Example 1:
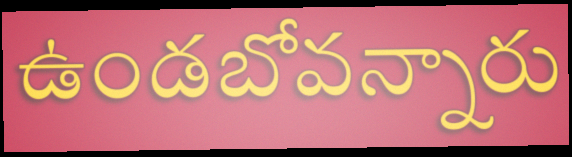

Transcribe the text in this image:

ఉండబోవన్నారు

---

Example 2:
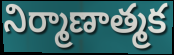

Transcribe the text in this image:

నిర్మాణాత్మక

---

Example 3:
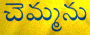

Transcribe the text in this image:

చెమ్మను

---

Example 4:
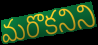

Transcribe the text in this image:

మరొకనిని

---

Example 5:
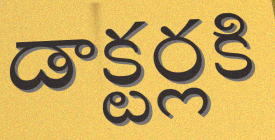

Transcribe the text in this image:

డాక్టర్లకి